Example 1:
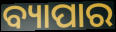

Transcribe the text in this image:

ବ୍ୟାପାର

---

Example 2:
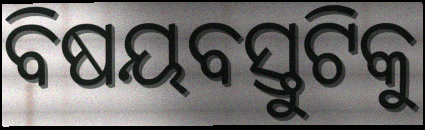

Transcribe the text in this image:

ବିଷୟବସ୍ତୁଟିକୁ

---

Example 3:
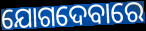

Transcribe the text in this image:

ଯୋଗଦେବାରେ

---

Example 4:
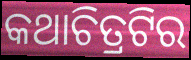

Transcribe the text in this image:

କଥାଚିତ୍ରଟିର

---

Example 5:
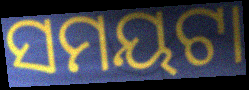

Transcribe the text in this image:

ସମୟଟା